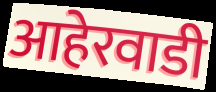
आहेरवाडी